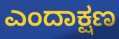
ಎಂದಾಕ್ಷಣ